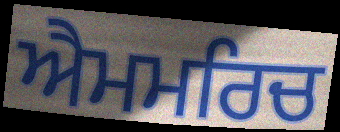
ਐਮਮਰਿਚ